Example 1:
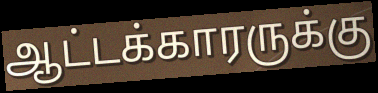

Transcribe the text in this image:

ஆட்டக்காரருக்கு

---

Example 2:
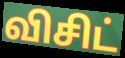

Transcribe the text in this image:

விசிட்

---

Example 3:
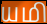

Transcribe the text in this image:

யமி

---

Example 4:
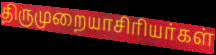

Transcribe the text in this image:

திருமுறையாசிரியர்கள்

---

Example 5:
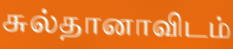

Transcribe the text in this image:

சுல்தானாவிடம்